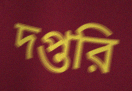
দপ্তরি